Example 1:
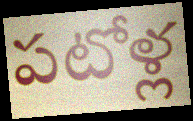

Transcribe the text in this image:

పటోళ్ల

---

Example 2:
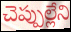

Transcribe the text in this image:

చెప్పుల్లేని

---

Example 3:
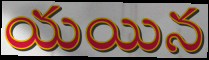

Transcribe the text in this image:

యయిన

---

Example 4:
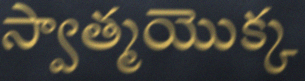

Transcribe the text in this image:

స్వాత్మయొక్క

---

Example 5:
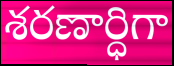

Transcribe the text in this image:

శరణార్ధిగా